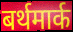
बर्थमार्क